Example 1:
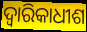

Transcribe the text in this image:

ଦ୍ୱାରିକାଧୀଶ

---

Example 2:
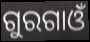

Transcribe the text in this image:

ଗୁରଗାଓଁ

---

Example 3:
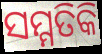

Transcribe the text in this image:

ସମ୍ମତିକି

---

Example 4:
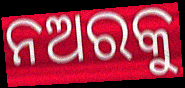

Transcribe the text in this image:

ନଅରକୁ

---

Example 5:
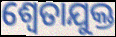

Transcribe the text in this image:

ଶ୍ଵେତାଯୁକ୍ତ